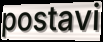
postavi